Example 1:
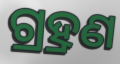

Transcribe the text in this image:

ଗ୍ର୍ରହଣ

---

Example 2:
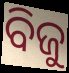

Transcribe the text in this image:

ବିଜୁ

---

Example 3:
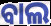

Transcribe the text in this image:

ବାଲ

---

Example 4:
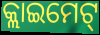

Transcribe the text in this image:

କ୍ଲାଇମେଟ୍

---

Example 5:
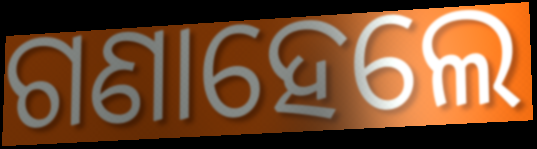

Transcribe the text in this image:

ଗଣାହେଲେ